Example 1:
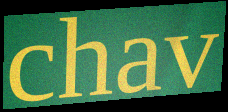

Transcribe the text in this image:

chav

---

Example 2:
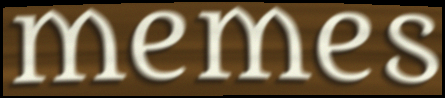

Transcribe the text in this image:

memes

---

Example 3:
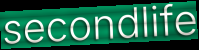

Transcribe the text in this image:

secondlife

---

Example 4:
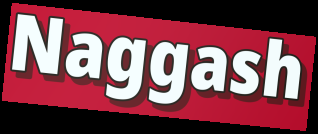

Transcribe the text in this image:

Naggash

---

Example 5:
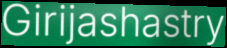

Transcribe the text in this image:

Girijashastry